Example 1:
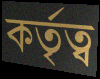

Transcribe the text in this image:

কৰ্তৃত্ব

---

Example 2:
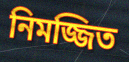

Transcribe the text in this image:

নিমজ্জিত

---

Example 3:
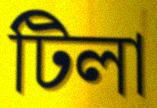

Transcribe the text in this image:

টিলা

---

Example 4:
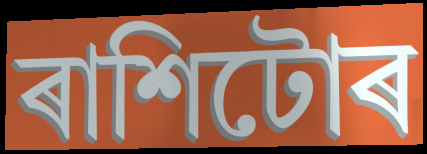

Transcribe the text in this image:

ৰাশিটোৰ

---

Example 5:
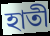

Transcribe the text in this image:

হাতী